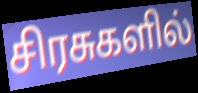
சிரசுகளில்